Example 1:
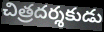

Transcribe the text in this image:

చిత్రదర్శకుడు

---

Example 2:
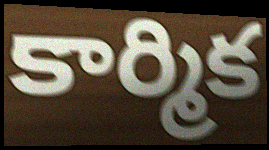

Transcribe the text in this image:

కార్మిక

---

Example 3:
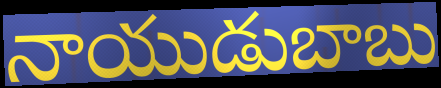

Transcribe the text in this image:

నాయుడుబాబు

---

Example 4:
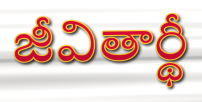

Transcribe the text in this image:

జీవితార్థీ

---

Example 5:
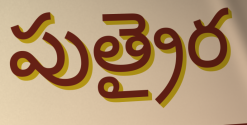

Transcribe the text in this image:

పుత్రైర